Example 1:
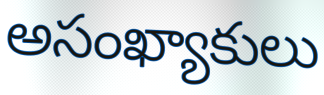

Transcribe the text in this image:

అసంఖ్యాకులు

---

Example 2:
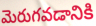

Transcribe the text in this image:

మెరుగవడానికి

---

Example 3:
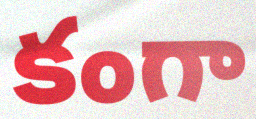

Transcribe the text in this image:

కంగా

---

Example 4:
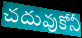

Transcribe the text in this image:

చదువుకోనీ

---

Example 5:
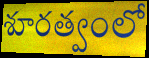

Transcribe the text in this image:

శూరత్వంలో